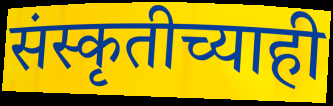
संस्कृतीच्याही